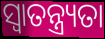
ସ୍ୱାତନ୍ତ୍ର୍ୟତା